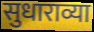
सुधाराव्या